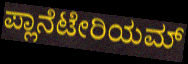
ಪ್ಲಾನೆಟೇರಿಯಮ್